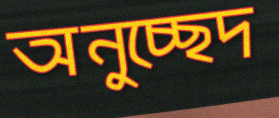
অনুচ্ছেদ